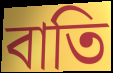
বাতি